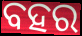
ବହର